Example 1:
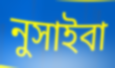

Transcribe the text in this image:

নুসাইবা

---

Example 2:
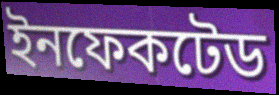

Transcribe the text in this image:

ইনফেকটেড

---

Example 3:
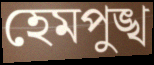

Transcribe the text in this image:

হেমপুঙ্খ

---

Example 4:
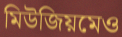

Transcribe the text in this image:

মিউজিয়মেও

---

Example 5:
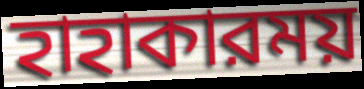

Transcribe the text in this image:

হাহাকারময়